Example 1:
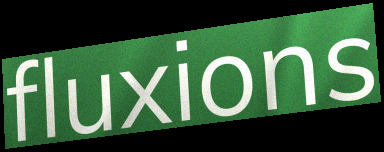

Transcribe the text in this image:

fluxions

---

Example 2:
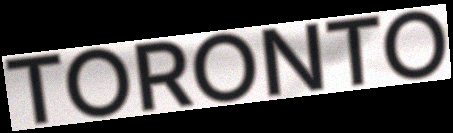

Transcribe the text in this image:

TORONTO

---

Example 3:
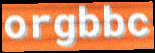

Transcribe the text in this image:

orgbbc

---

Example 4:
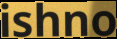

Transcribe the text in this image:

ishno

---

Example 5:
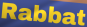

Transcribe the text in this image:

Rabbat